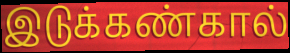
இடுக்கண்கால்